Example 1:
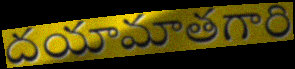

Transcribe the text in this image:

దయామాతగారి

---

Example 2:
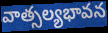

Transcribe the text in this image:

వాత్సల్యభావన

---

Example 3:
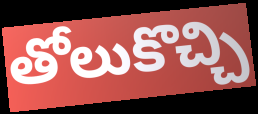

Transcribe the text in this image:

తోలుకొచ్చి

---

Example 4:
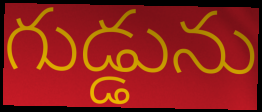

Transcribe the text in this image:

గుడ్డును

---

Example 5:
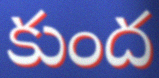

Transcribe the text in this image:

కుంద